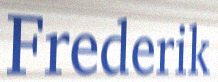
Frederik